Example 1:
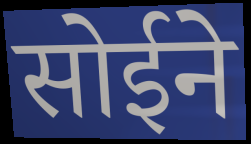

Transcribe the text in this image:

सोईने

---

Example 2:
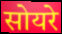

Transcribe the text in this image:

सोयरे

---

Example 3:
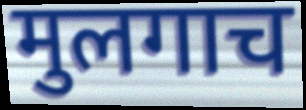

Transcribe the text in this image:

मुलगाच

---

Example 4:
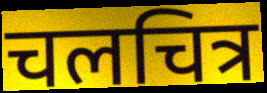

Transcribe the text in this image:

चलचित्र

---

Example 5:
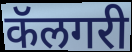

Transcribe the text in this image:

कॅलगरी